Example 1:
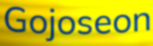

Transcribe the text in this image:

Gojoseon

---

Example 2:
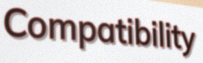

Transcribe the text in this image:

Compatibility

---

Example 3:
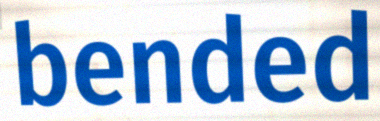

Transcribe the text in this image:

bended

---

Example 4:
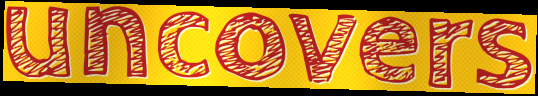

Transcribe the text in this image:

uncovers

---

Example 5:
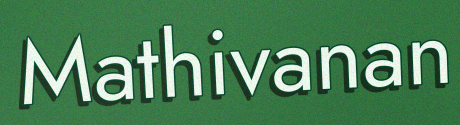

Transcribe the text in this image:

Mathivanan